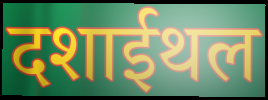
दशाईथल